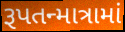
રૂપતન્માત્રામાં